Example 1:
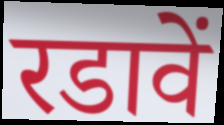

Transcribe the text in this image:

रडावें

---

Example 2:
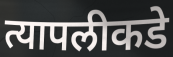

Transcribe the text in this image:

त्यापलीकडे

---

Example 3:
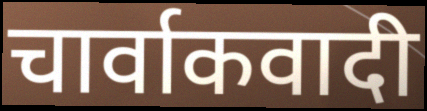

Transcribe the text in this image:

चार्वाकवादी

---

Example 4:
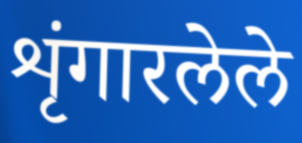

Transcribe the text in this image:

शृंगारलेले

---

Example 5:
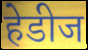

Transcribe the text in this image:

हेडीज